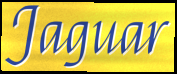
Jaguar